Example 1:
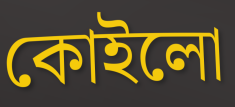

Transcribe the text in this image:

কোইলো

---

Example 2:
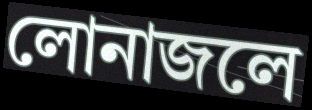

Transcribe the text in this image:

লোনাজলে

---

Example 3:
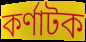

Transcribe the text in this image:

কর্ণাটক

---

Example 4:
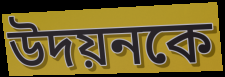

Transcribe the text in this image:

উদয়নকে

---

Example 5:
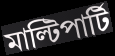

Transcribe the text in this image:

মাল্টিপার্টি